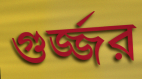
গুর্জ্জর